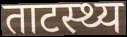
ताटस्थ्य